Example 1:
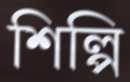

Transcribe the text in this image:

শিল্পি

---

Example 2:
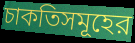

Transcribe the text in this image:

চাকতিসমূহের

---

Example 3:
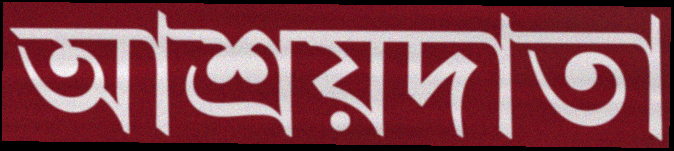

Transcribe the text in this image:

আশ্রয়দাতা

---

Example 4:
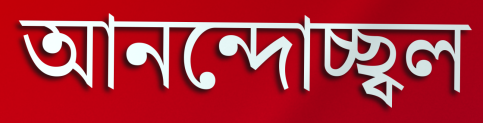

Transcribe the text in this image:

আনন্দোচ্ছ্বল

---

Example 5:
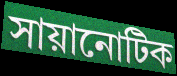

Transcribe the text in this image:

সায়ানোটিক